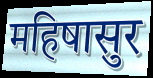
महिषासुर